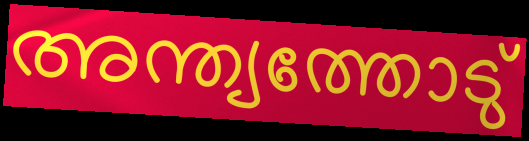
അന്ത്യത്തോടു്